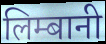
लिम्बानी